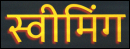
स्वीमिंग